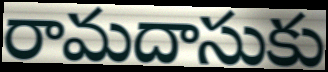
రామదాసుకు